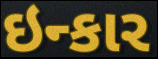
ઇન્કાર